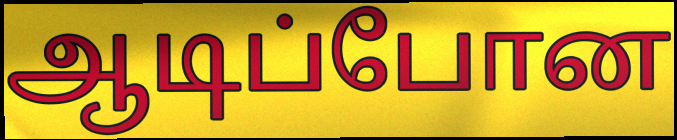
ஆடிப்போன